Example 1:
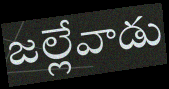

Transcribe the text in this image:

జల్లేవాడు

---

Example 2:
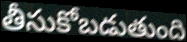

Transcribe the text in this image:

తీసుకోబడుతుంది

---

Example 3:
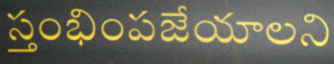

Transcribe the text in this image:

స్తంభింపజేయాలని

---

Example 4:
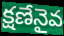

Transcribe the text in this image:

క్షణేనైవ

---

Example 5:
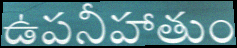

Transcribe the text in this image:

ఉపనీహాతుం